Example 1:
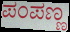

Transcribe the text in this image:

ಪಂಪಣ್ಣ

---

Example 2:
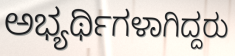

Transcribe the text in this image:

ಅಭ್ಯರ್ಥಿಗಳಾಗಿದ್ದರು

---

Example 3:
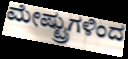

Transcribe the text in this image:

ಮೇಷ್ಟ್ರುಗಳಿಂದ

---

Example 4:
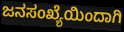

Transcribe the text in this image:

ಜನಸಂಖ್ಯೆಯಿಂದಾಗಿ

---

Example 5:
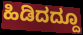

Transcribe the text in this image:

ಹಿಡಿದದ್ದೂ